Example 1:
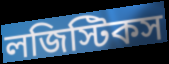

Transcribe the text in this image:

লজিস্টিকস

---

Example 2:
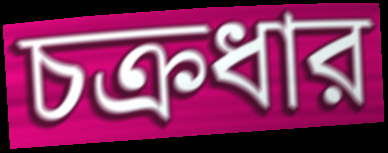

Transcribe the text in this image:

চক্রধার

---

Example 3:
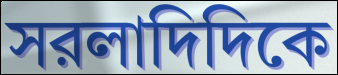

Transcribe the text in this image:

সরলাদিদিকে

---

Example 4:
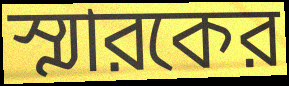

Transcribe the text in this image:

স্মারকের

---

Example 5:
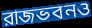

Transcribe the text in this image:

রাজভবনও